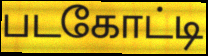
படகோட்டி